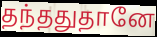
தந்ததுதானே